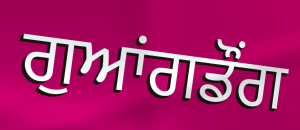
ਗੁਆਂਗਡੌਂਗ